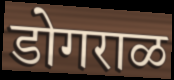
डोगराळ